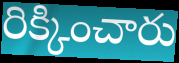
రిక్కించారు